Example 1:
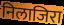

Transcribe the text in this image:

निलाजिरा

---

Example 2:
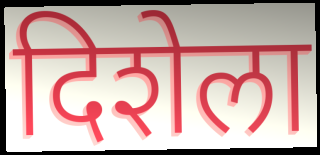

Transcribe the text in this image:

दिशेला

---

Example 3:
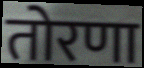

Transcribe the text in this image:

तोरणा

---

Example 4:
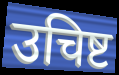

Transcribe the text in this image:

उचिष्ट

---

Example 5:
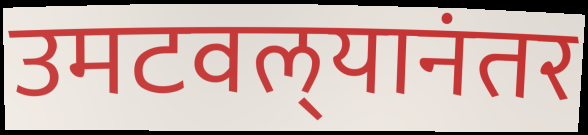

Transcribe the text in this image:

उमटवल्यानंतर